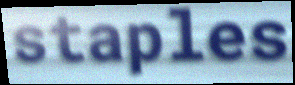
staples